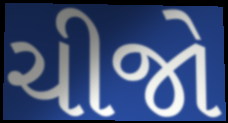
ચીજો